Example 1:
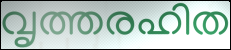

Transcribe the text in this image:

വൃത്തരഹിത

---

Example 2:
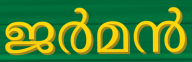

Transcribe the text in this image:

ജർമൻ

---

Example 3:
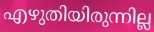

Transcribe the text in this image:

എഴുതിയിരുന്നില്ല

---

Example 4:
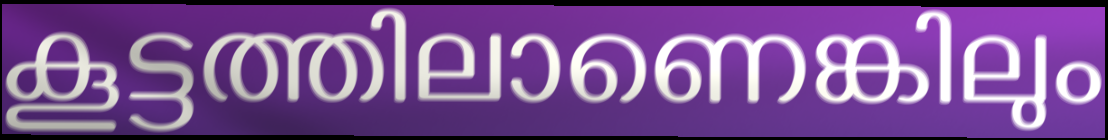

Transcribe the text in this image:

കൂട്ടത്തിലാണെങ്കിലും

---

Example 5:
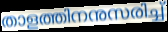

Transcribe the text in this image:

താളത്തിനനുസരിച്ച്